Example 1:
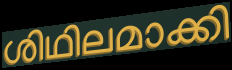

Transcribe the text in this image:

ശിഥിലമാക്കി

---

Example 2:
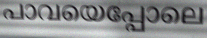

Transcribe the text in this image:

പാവയെപ്പോലെ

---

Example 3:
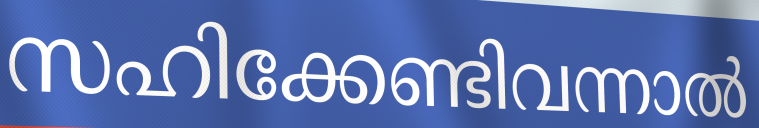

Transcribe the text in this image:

സഹിക്കേണ്ടിവന്നാൽ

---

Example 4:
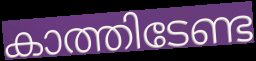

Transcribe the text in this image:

കാത്തിടേണ്ട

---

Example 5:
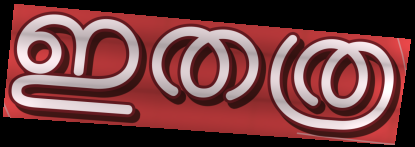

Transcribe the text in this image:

ഇതത്ര